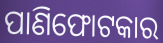
ପାଣିଫୋଟକାର